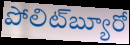
పోలిట్‌బ్యూరో